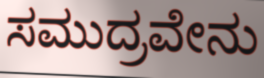
ಸಮುದ್ರವೇನು